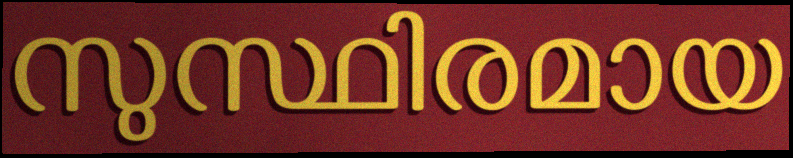
സുസ്ഥിരമായ